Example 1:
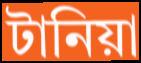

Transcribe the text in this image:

টানিয়া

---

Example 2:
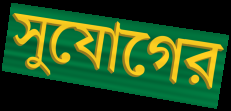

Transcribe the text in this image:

সুযোগের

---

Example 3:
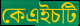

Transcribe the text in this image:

কেএইচটি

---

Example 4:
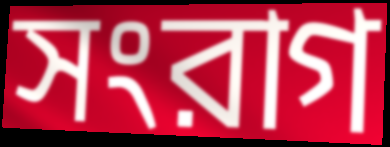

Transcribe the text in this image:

সংরাগ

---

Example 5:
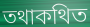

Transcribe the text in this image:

তথাকথিত